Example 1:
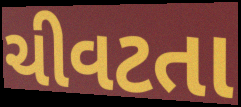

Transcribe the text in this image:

ચીવટતા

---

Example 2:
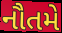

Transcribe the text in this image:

નૌતમે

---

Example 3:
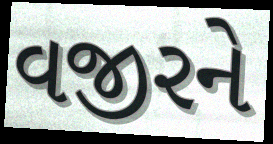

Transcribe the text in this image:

વજીરને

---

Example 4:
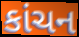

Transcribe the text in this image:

કાંચન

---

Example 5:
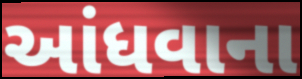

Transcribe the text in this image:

આંધવાના